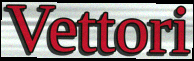
Vettori